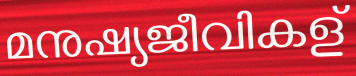
മനുഷ്യജീവികള്